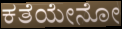
ಕತೆಯೇನೋ